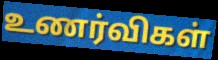
உணர்விகள்